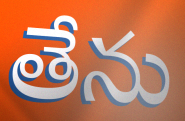
తేను